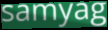
samyag